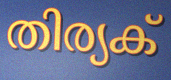
തിര്യക്